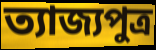
ত্যাজ্যপুত্র